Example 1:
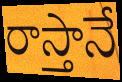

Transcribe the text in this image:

రాస్తానే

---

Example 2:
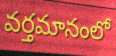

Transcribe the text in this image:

వర్తమానంలో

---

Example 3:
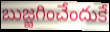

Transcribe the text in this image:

బుజ్జగించేందుకే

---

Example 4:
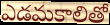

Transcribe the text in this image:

ఎడమకాలితో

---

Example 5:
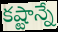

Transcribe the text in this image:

కష్టాన్నే